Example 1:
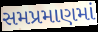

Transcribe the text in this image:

સમપ્રમાણમાં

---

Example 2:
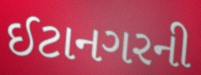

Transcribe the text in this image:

ઈટાનગરની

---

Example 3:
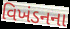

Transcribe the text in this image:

વિખંડનના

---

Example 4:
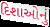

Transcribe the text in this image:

દિશાઓનું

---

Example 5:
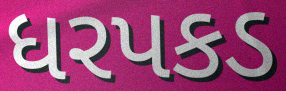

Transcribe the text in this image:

ધરપકડ